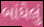
બાંધેલું